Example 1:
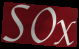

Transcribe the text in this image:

SOx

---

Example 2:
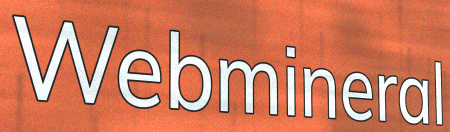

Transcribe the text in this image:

Webmineral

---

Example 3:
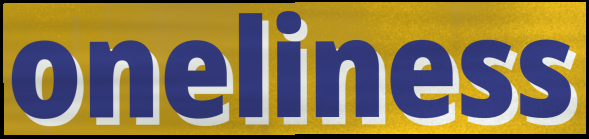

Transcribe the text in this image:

oneliness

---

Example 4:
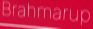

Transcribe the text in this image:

Brahmarup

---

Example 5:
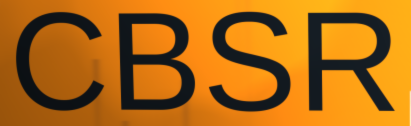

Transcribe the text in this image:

CBSR